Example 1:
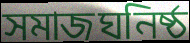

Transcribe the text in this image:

সমাজঘনিষ্ঠ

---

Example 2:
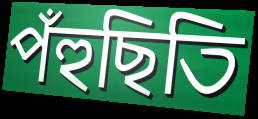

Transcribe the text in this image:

পঁহুছিতি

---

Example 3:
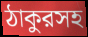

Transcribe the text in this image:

ঠাকুরসহ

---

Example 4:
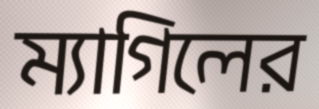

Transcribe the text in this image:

ম্যাগিলের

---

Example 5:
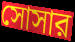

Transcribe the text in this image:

সোসার